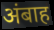
अंबाह